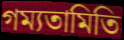
গম্যতামিতি